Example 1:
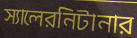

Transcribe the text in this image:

স্যালেরনিটানার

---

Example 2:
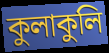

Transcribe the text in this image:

কুলাকুলি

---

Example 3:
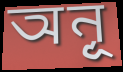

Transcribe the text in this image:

অনূ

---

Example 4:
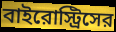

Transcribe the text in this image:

বাইরোস্ট্রিসের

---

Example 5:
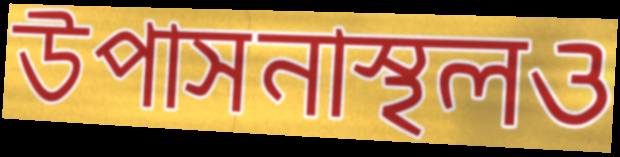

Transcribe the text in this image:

উপাসনাস্থলও